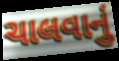
ચાલવાનું